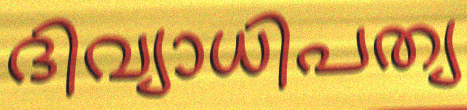
ദിവ്യാധിപത്യ